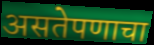
असतेपणाचा